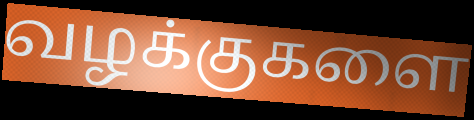
வழக்குகளை